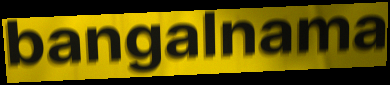
bangalnama